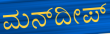
ಮನ್‍ದೀಪ್